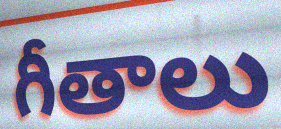
గీతాలు